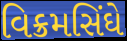
વિક્રમસિંઘે